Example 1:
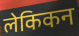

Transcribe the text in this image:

लेकिकन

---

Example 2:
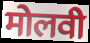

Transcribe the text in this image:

मोलवी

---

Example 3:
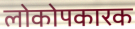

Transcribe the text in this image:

लोकोपकारक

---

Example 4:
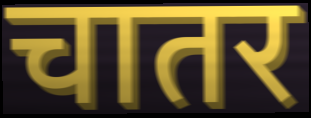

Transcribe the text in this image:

चातर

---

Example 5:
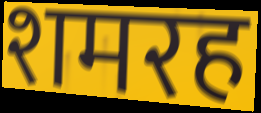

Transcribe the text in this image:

शमरह